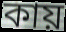
কায়